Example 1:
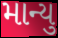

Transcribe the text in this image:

માન્યુ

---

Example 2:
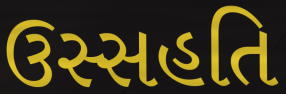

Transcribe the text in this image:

ઉસ્સહતિ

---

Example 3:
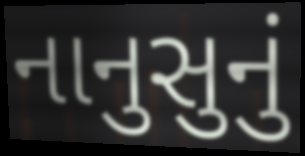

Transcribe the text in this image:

નાનુસુનું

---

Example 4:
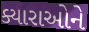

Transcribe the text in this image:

ક્યારાઓને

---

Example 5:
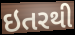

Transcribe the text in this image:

ઇતરથી